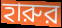
হারুর